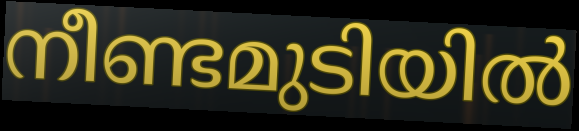
നീണ്ടമുടിയിൽ